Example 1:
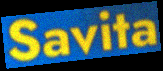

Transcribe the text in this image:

Savita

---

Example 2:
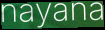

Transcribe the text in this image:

nayana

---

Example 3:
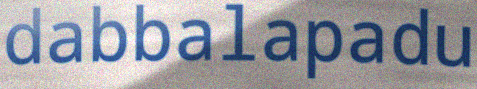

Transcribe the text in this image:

dabbalapadu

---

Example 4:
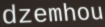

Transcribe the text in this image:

dzemhou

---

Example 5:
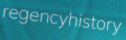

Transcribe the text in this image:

regencyhistory